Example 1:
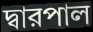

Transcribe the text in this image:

দ্বারপাল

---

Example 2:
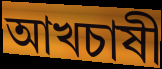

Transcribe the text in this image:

আখচাষী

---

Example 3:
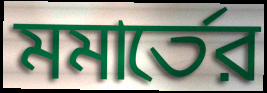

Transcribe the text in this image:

মমার্তের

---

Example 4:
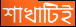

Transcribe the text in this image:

শাখাটিই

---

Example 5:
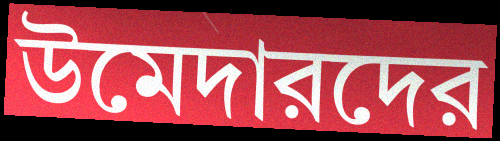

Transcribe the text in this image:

উমেদারদের